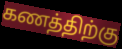
கணத்திற்கு